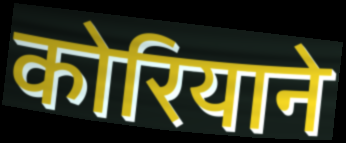
कोरियाने